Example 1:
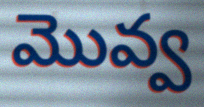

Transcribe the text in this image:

మొవ్వ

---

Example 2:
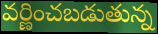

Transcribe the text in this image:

వర్ణించబడుతున్న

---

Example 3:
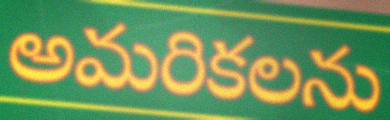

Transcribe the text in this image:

అమరికలను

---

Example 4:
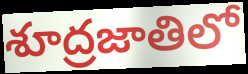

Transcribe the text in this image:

శూద్రజాతిలో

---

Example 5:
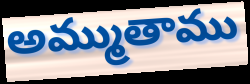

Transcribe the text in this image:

అమ్ముతాము